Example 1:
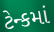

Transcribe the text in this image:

ટેન્કમાં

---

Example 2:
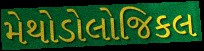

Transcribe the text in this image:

મેથોડોલોજિકલ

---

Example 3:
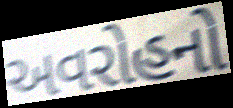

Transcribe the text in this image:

અવરોહનો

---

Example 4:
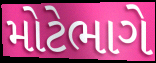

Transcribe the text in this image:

મોટેભાગે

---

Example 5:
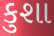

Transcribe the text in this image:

કુશા